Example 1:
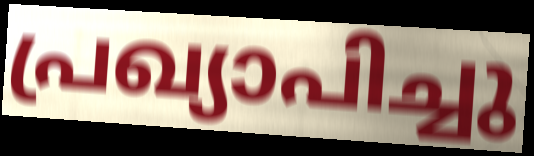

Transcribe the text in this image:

പ്രഖ്യാപിച്ചു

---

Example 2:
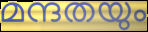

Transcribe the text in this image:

മന്ദതയും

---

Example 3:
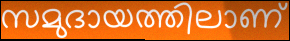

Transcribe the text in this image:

സമുദായത്തിലാണ്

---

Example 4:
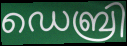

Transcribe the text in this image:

ഡെബ്രി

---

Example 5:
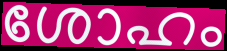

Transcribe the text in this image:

ശോഹം